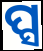
ପ୍ସ